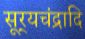
सूर्यचंद्रादि